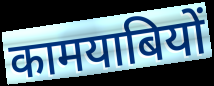
कामयाबियों